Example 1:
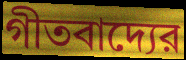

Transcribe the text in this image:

গীতবাদ্যের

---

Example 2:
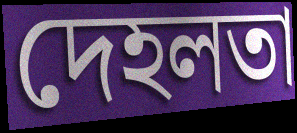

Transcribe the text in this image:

দেহলতা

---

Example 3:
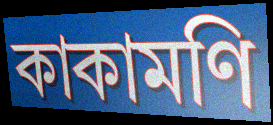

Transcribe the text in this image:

কাকামণি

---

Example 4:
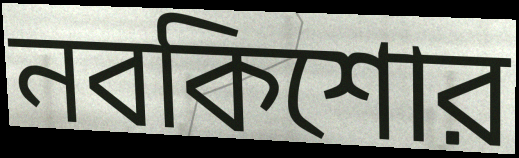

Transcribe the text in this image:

নবকিশোর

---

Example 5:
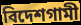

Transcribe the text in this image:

বিদেশগামী